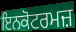
ਇਨਕੋਟਰਮਜ਼